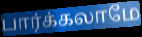
பார்க்கலாமே